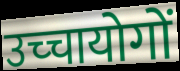
उच्‍चायोगों